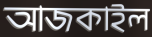
আজকাইল